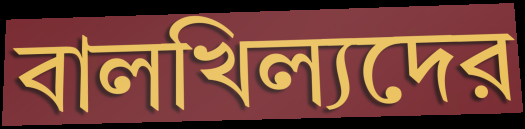
বালখিল্যদের